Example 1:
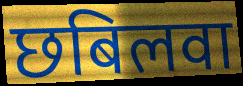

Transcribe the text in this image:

छबिलवा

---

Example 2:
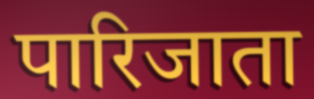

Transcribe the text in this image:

पारिजाता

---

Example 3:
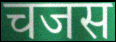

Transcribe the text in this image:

चजस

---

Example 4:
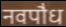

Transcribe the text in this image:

नवपौध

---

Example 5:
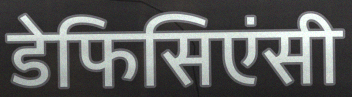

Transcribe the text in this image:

डेफिसिएंसी